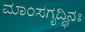
ಮಾಂಸಗೃದ್ಧಿನಃ